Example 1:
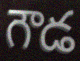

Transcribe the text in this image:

గౌడ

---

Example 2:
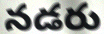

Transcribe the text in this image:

నడరు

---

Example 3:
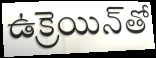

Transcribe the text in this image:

ఉక్రెయిన్‌తో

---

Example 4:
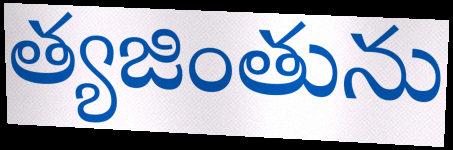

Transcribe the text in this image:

త్యజింతును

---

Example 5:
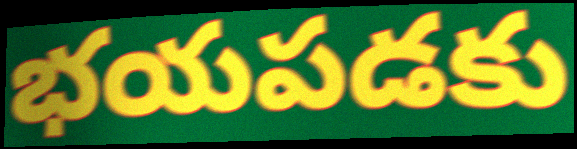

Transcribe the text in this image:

భయపడకు